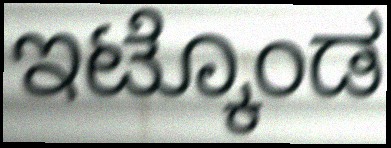
ಇಟ್ಕೊಂಡ